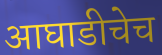
आघाडीचेच